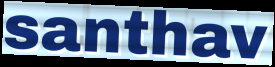
santhav